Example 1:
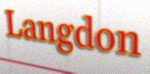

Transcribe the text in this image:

Langdon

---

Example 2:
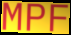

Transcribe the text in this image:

MPF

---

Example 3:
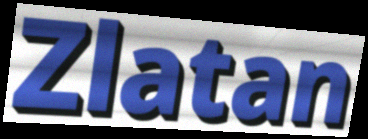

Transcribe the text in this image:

Zlatan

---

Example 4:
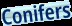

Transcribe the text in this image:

Conifers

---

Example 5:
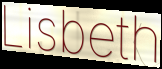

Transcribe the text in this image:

Lisbeth